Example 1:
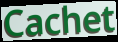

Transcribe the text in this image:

Cachet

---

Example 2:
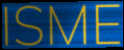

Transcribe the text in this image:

ISME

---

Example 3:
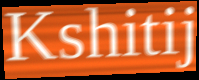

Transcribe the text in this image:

Kshitij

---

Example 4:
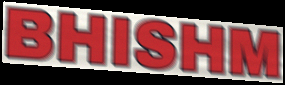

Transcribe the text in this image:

BHISHM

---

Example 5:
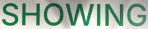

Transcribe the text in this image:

SHOWING